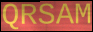
QRSAM